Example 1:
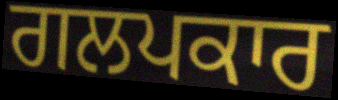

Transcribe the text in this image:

ਗਲਪਕਾਰ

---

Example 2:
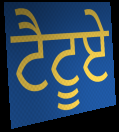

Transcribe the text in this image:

ਟੈਟੂਏ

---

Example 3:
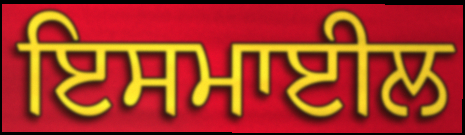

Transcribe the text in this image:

ਇਸਮਾਈਲ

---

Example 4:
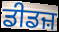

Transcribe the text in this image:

ਡੀਡਜ਼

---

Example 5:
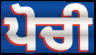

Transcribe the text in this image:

ਪੋਚੀ